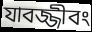
যাবজ্জীবং